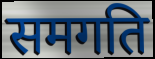
समगति